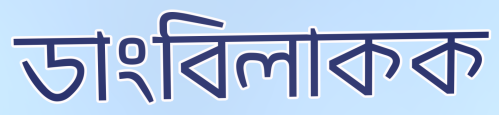
ডাংবিলাকক